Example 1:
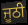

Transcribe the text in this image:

ਜੂਠੀ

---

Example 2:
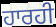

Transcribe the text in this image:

ਹਾਰਹੀ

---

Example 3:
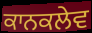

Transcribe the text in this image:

ਕਾਨਕਲੇਵ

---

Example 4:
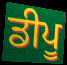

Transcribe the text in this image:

ਡੀਪੂ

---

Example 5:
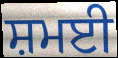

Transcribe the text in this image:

ਸ਼ਮਈ